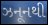
ઝનૂનથી